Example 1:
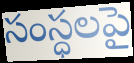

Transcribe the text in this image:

సంస్ధలపై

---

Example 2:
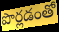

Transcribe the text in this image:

పొర్లడంతో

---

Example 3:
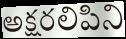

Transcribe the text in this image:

అక్షరలిపిని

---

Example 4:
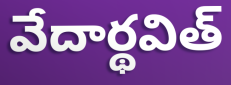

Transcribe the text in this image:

వేదార్థవిత్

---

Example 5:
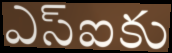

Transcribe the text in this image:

ఎస్ఐకు